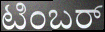
ಟಿಂಬರ್